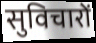
सुविचारों